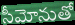
సీమోనుతో